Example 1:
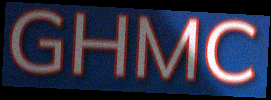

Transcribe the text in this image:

GHMC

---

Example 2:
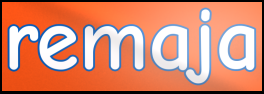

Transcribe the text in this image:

remaja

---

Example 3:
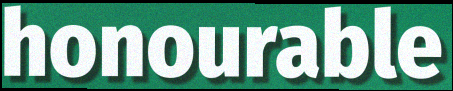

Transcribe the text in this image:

honourable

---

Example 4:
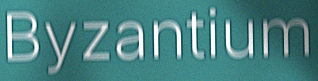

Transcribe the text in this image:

Byzantium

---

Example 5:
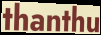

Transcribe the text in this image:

thanthu